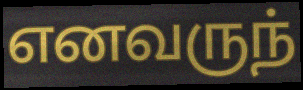
எனவருந்